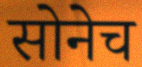
सोनेच